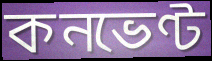
কনভেণ্ট